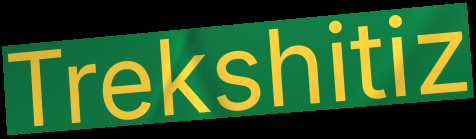
Trekshitiz